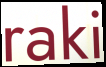
raki